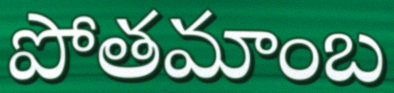
పోతమాంబ